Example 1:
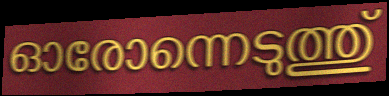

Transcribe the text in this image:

ഓരോന്നെടുത്തു്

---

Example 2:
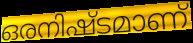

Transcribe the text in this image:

ഒരനിഷ്ടമാണ്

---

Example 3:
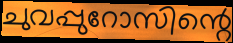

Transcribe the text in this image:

ചുവപ്പുറോസിന്റെ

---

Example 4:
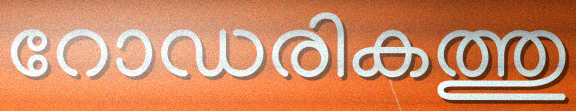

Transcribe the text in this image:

റോഡരികത്തു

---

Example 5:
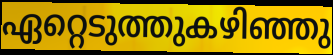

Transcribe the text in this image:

ഏറ്റെടുത്തുകഴിഞ്ഞു